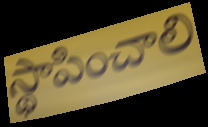
స్థాపించాలి